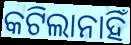
କଟିଲାନାହିଁ